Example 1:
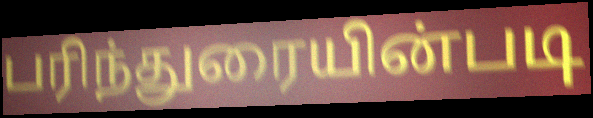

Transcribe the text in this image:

பரிந்துரையின்படி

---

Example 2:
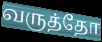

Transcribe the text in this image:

வருத்தோ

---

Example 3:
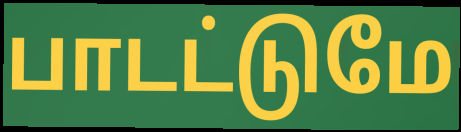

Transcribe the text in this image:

பாடட்டுமே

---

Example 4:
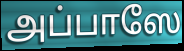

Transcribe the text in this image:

அப்பாஸே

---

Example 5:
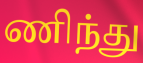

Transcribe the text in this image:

ணிந்து